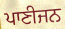
ਪਾਣੀਜਨ